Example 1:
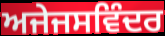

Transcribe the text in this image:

ਅਜੇਜਸਵਿੰਦਰ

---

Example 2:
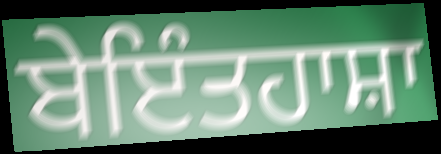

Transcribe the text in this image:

ਬੇਇੰਤਹਾਸ਼ਾ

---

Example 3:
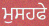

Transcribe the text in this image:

ਮੁਸਹਫੇ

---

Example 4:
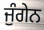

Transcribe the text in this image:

ਜੁੰਗੇਨ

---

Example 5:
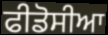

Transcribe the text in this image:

ਫੀਡੋਸੀਆ